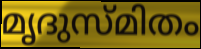
മൃദുസ്മിതം